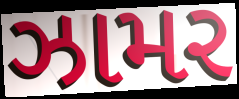
ઝામર